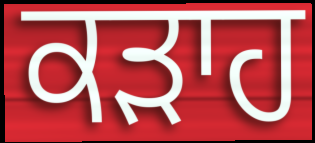
ਕੜਾਹ